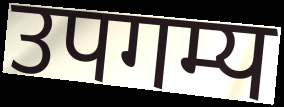
उपगम्य